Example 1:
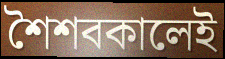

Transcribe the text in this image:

শৈশবকালেই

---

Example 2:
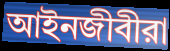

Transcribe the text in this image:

আইনজীবীরা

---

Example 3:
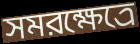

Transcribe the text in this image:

সমরক্ষেত্রে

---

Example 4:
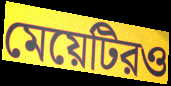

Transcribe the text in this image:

মেয়েটিরও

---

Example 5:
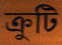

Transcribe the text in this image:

ক্রুটি